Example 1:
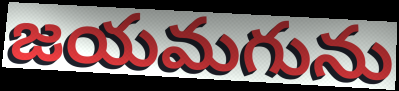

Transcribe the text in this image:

జయమగును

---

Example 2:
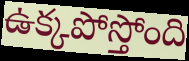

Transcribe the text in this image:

ఉక్కపోస్తోంది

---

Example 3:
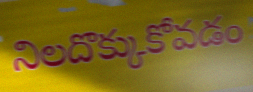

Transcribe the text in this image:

నిలదొక్కుకోవడం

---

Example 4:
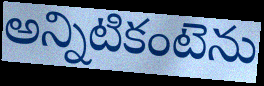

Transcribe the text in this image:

అన్నిటికంటెను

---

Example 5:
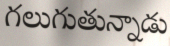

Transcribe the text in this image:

గలుగుతున్నాడు